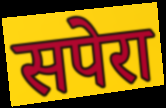
सपेरा